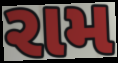
રામ